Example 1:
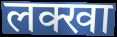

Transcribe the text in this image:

लक्खा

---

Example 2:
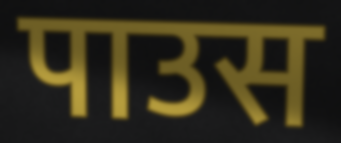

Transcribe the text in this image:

पाउस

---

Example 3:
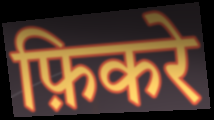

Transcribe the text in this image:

फ़िकरे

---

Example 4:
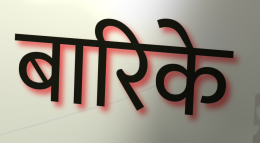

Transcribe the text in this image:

बारिके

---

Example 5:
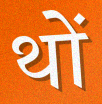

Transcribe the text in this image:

थों